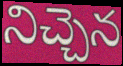
నిచ్చెన